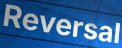
Reversal